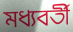
মধ্যবৰ্তী